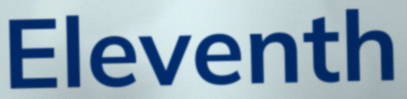
Eleventh